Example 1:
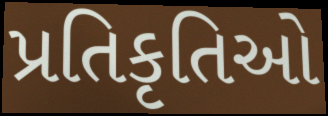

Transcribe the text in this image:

પ્રતિકૃતિઓ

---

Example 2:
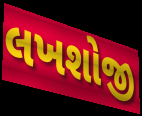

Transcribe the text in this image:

લખશોજી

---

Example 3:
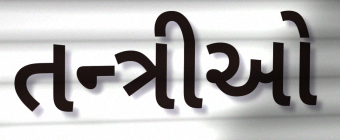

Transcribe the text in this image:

તન્ત્રીઓ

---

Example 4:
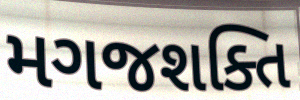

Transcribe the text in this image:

મગજશક્તિ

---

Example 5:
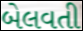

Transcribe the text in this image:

બેલવતી